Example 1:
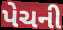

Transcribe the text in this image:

પેચની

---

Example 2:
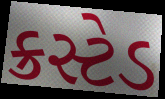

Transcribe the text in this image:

ક્રસ્ટેડ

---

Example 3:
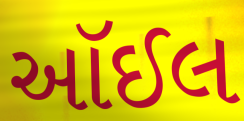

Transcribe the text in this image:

આૅઈલ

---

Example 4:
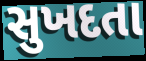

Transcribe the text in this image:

સુખદતા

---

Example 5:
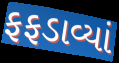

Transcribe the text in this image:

ફફડાવ્યાં